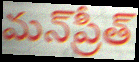
మన్‌ప్రీత్